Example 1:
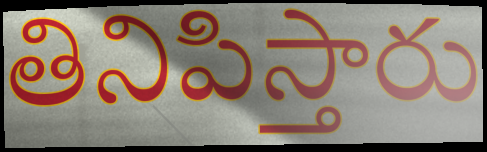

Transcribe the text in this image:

తినిపిస్తారు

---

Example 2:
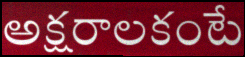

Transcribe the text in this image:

అక్షరాలకంటే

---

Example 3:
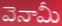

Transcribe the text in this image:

వెనామీ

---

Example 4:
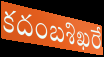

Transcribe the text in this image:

కదంబశిఖరే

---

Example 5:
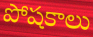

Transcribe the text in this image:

పోషకాలు